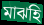
মাঝহি